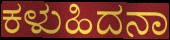
ಕಳುಹಿದನಾ